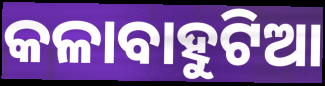
କଳାବାହୁଟିଆ